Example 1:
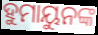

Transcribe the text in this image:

ହୁମାୟୁନଙ୍କ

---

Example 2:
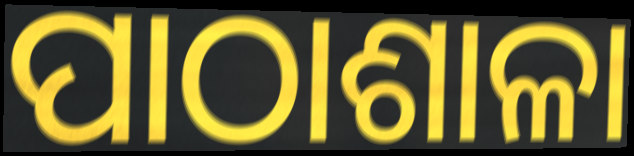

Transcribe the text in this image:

ପାଠାଶାଳା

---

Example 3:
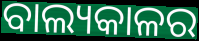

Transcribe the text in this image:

ବାଲ୍ୟକାଳର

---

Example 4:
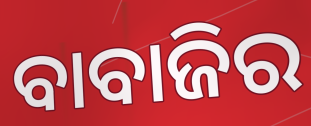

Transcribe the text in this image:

ବାବାଜିର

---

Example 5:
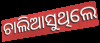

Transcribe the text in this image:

ଚାଲିଆସୁଥିଲେ